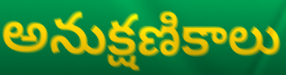
అనుక్షణికాలు